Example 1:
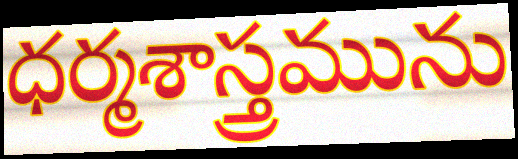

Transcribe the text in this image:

ధర్మశాస్త్రమును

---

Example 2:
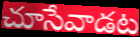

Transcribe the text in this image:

చూసేవాడట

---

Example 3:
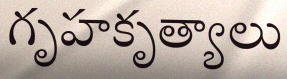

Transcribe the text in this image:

గృహకృత్యాలు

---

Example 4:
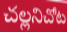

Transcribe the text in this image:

చల్లనిచోట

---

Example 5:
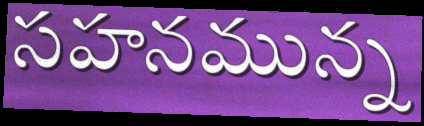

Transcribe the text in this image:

సహనమున్న